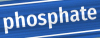
phosphate